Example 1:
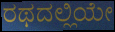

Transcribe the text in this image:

ರಥದಲ್ಲಿಯೇ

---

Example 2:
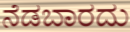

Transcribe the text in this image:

ನೆಡಬಾರದು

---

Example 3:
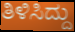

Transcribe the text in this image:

ತಿಳಿಸಿದ್ದು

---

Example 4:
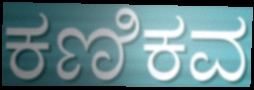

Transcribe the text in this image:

ಕಣಿಕವ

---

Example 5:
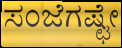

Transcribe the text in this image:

ಸಂಜೆಗಷ್ಟೇ